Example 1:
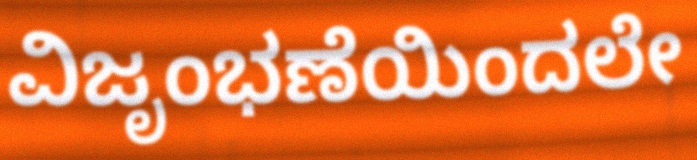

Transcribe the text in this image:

ವಿಜೃಂಭಣೆಯಿಂದಲೇ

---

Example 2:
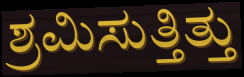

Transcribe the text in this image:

ಶ್ರಮಿಸುತ್ತಿತ್ತು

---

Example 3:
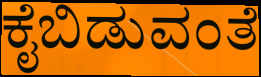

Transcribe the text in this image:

ಕೈಬಿಡುವಂತೆ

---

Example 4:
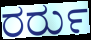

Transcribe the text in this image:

ರರ್ರು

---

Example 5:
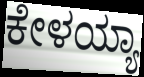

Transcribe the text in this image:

ಕೇಳಯ್ಯಾ